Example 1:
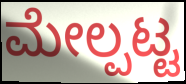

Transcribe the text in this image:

ಮೇಲ್ಪಟ್ಟ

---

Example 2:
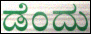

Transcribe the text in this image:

ಡೆಂದು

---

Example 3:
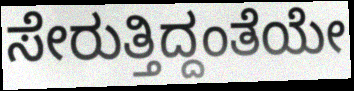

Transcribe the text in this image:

ಸೇರುತ್ತಿದ್ದಂತೆಯೇ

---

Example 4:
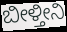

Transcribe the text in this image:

ಬೀಳ್ತೀನಿ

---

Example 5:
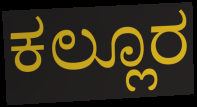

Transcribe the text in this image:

ಕಲ್ಲೂರ